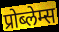
प्रोब्लेम्स